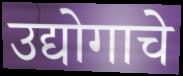
उद्योगाचे